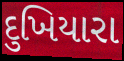
દુખિયારા